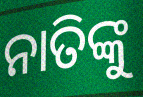
ନାତିଙ୍କୁ